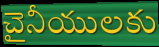
చైనీయులకు